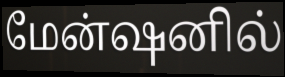
மேன்ஷனில்